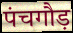
पंचगौड़